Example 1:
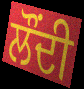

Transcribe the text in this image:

ਲੌਂਦੀ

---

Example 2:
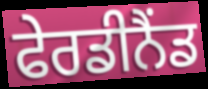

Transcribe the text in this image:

ਫੇਰਡੀਨੈਂਡ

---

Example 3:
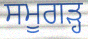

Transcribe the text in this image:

ਸਮੂਗੜ੍ਹ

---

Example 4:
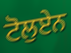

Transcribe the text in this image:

ਟੋਲੁਏਨ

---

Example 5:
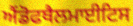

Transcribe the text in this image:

ਐਂਡੋਫਥੈਲਮਾਈਟਿਸ